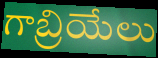
గాబ్రియేలు